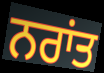
ਨਰਾਂਤ